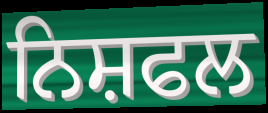
ਨਿਸ਼ਫਲ